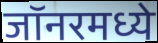
जॉनरमध्ये